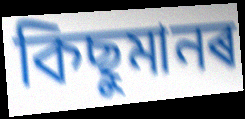
কিছুমানৰ